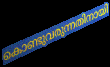
കൊണ്ടുവരുന്നതിനായി